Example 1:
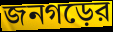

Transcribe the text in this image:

জনগড়ের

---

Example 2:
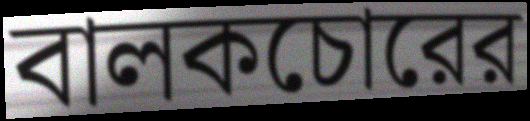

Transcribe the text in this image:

বালকচোরের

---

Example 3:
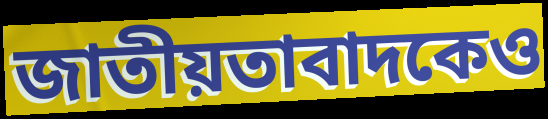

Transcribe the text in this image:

জাতীয়তাবাদকেও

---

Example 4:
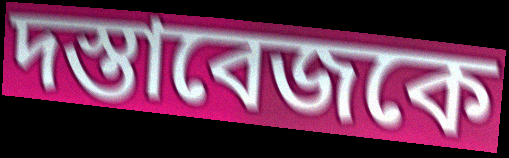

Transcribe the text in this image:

দস্তাবেজকে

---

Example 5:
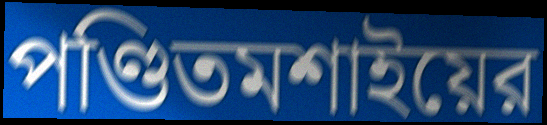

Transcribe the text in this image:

পণ্ডিতমশাইয়ের